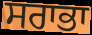
ਸਰਾਭਾ